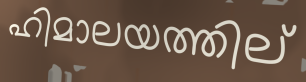
ഹിമാലയത്തില്